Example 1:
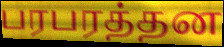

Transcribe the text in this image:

பரபரத்தன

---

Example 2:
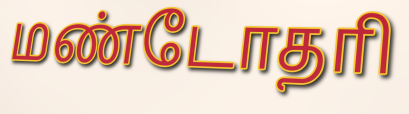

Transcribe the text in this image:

மண்டோதரி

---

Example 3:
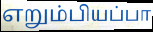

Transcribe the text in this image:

எறும்பியப்பா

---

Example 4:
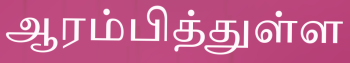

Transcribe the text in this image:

ஆரம்பித்துள்ள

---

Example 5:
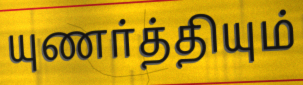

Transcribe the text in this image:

யுணர்த்தியும்